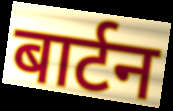
बार्टन